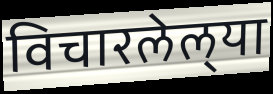
विचारलेल्या